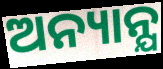
ଅନ୍ୟାନ୍ଯ